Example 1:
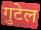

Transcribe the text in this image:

गुटेल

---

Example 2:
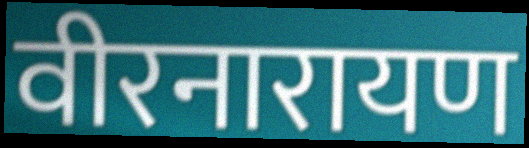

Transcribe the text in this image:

वीरनारायण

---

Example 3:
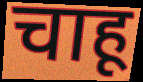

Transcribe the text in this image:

चाहू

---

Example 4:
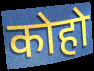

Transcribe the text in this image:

कोहो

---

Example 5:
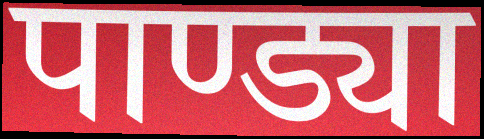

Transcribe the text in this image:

पाण्ड्या